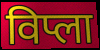
विप्ला